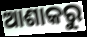
ଆଶାକରୁ